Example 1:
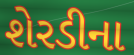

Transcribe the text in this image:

શેરડીના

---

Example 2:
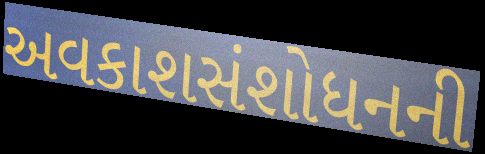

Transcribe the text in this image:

અવકાશસંશોધનની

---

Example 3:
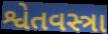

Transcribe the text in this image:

શ્વેતવસ્ત્રા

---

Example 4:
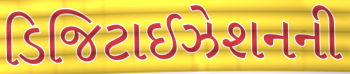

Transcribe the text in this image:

ડિજિટાઈઝેશનની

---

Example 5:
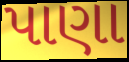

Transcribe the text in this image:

પાણા